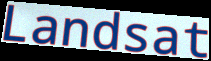
Landsat